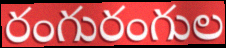
రంగురంగుల